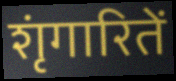
शृंगारितें